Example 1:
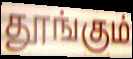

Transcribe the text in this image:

தூங்கும்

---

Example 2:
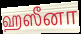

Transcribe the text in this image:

ஹஸீனா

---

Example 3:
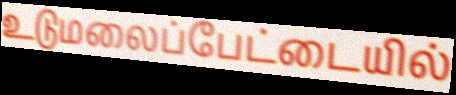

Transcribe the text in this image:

உடுமலைப்பேட்டையில்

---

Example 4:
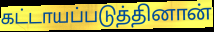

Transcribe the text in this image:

கட்டாயப்படுத்தினான்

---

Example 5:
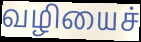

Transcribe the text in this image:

வழியைச்